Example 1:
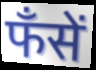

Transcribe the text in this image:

फँसें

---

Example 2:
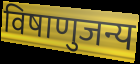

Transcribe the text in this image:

विषाणुजन्य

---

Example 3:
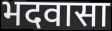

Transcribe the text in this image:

भदवासा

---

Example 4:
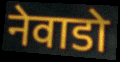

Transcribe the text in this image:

नेवाडो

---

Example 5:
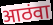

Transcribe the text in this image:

आठंवा